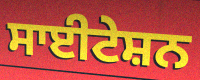
ਸਾਈਟੇਸ਼ਨ